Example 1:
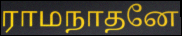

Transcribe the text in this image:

ராமநாதனே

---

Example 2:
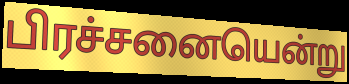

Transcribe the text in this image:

பிரச்சனையென்று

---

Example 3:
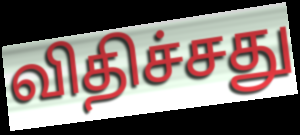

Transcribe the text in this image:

விதிச்சது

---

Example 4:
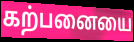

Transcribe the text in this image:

கற்பனையை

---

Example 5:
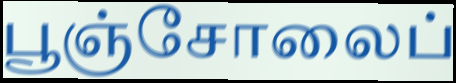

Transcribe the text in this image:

பூஞ்சோலைப்